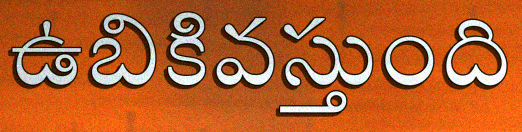
ఉబికివస్తుంది